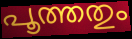
പൂത്തതും